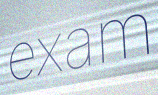
exam